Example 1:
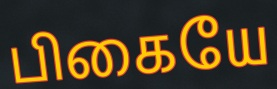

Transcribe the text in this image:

பிகையே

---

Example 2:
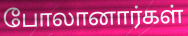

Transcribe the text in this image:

போலானார்கள்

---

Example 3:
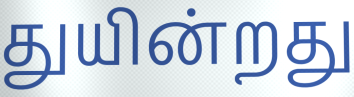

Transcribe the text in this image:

துயின்றது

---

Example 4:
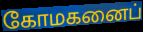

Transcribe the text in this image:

கோமகனைப்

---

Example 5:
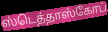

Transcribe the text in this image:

ஸ்டெத்தாஸ்கோப்